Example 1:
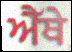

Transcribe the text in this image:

ਐੱਥੇ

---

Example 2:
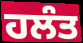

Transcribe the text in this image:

ਹਲੰਤ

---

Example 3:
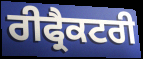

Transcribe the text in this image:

ਰੀਫ੍ਰੈਕਟਰੀ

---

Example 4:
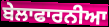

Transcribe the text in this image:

ਬੇਲਾਫਾਰਨੀਆ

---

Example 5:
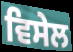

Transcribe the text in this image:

ਵਿਸੇਲ